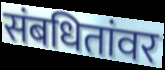
संबधितांवर